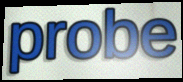
probe